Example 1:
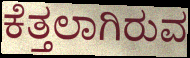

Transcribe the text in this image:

ಕೆತ್ತಲಾಗಿರುವ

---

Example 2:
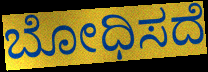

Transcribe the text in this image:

ಬೋಧಿಸದೆ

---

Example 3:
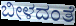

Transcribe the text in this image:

ಬೀಳದಂತೆ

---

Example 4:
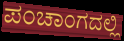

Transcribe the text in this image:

ಪಂಚಾಂಗದಲ್ಲಿ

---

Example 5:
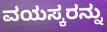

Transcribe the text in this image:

ವಯಸ್ಕರನ್ನು